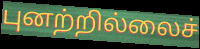
புனற்றில்லைச்